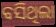
ବସିଥିଲା